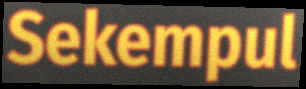
Sekempul